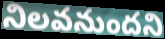
నిలవనుందని